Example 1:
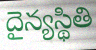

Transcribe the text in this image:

దైన్యస్థితి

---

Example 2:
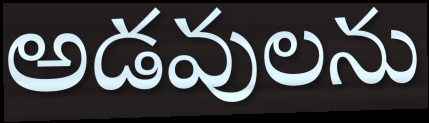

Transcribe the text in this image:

అడవులను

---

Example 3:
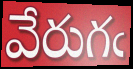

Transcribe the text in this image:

వేరుగఁ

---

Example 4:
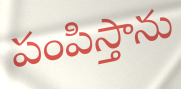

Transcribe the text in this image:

పంపిస్తాను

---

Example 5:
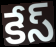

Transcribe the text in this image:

కేస్